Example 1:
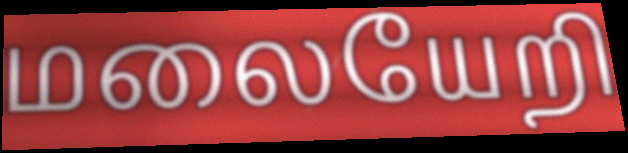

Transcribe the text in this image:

மலையேறி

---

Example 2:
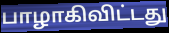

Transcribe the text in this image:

பாழாகிவிட்டது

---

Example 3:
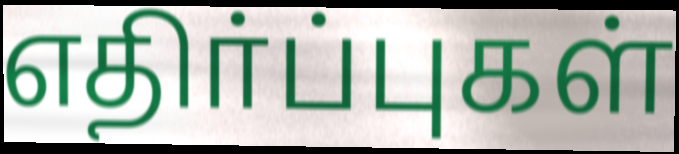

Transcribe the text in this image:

எதிர்ப்புகள்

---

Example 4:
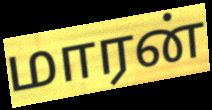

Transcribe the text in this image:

மாரன்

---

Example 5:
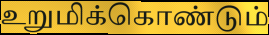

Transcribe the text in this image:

உறுமிக்கொண்டும்